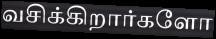
வசிக்கிறார்களோ